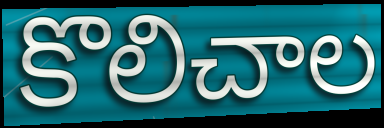
కొలిచాల